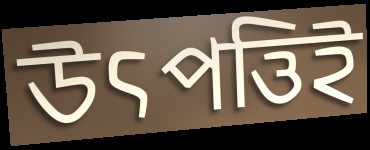
উৎপত্তিই